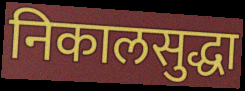
निकालसुद्धा